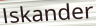
Iskander